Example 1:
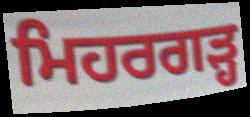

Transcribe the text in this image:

ਮਿਹਰਗੜ੍ਹ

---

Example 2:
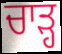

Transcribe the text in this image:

ਚਾਡ਼੍ਹ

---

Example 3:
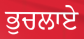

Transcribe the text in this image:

ਭੁਚਲਾਏ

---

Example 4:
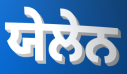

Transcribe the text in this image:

ਯੇਲੇਨ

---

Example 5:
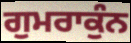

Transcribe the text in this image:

ਗੁਮਰਾਕੁੰਨ